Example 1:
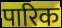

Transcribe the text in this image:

पारिक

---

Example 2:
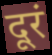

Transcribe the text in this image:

दूरं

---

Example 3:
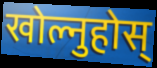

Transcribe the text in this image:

खोल्नुहोस्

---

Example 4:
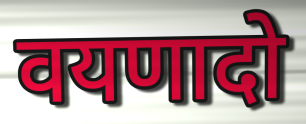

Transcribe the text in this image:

वयणादो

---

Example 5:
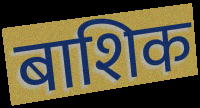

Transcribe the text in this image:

बाशिक